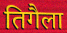
तिगैला